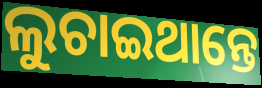
ଲୁଚାଇଥାନ୍ତେ